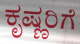
ಕೃಷ್ಣರಿಗೆ